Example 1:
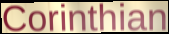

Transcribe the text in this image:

Corinthian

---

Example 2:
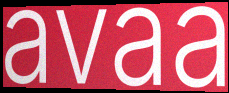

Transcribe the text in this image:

avaa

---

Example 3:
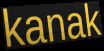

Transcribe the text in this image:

kanak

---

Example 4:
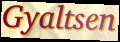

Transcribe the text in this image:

Gyaltsen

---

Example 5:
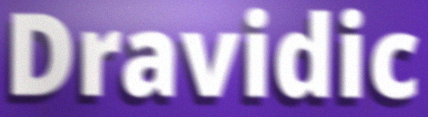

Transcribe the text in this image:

Dravidic